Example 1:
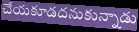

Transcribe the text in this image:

చేయకూడదనుకున్నాడు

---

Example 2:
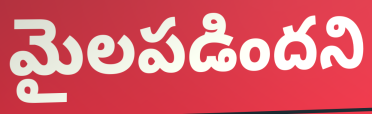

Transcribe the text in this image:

మైలపడిందని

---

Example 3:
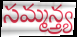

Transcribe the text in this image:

సమ్మన్త్ర్య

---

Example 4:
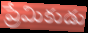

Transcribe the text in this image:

ప్రేమికుడు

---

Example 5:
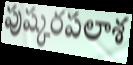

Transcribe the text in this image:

పుష్కరపలాశ